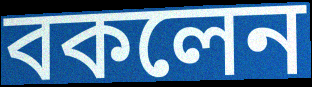
বকলেন